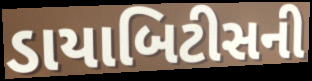
ડાયાબિટીસની